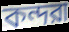
কন্দরা